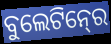
ବୁଲେଟିନ୍‍ରେ